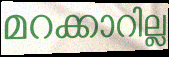
മറക്കാറില്ല